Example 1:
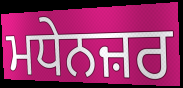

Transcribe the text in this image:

ਮਧੇਨਜ਼ਰ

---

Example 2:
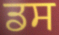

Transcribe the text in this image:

ਡਸ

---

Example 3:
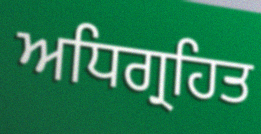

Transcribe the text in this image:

ਅਧਿਗ੍ਰਹਿਤ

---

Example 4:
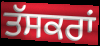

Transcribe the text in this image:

ਤੱਸਕਰਾਂ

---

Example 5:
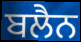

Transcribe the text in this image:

ਬਲੈਨ